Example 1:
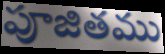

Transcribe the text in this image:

పూజితము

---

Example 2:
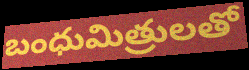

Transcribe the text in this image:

బంధుమిత్రులతో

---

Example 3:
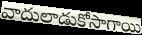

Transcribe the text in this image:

వాదులాడుకోసాగాయి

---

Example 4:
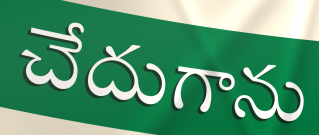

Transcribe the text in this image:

చేదుగాను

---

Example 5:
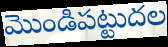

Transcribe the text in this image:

మొండిపట్టుదల